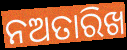
ନଅତାରିଖ